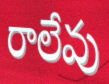
రాలేవు